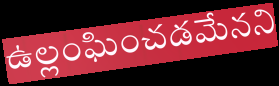
ఉల్లంఘించడమేనని